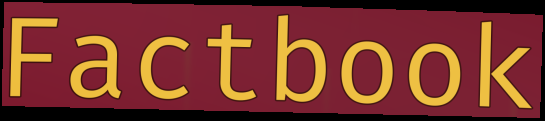
Factbook